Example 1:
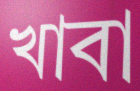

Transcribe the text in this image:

খাবা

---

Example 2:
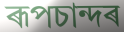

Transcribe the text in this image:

ৰূপচান্দৰ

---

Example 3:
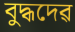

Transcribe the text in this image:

বুদ্ধদেৱ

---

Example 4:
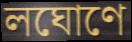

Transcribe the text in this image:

লঘোণে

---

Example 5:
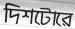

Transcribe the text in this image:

দিশটোৱে